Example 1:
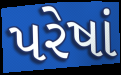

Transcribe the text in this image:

પરેષાં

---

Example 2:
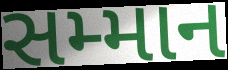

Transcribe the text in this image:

સમ્માન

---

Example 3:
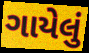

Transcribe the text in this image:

ગાયેલું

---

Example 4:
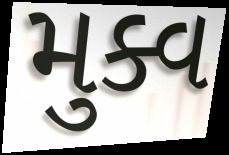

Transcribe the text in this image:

મુક્વ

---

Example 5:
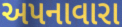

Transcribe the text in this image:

અપનાવારા